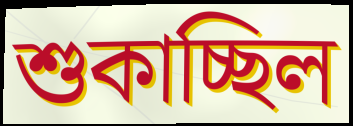
শুকাচ্ছিল